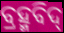
ବ୍ରହ୍ମବିଦ୍